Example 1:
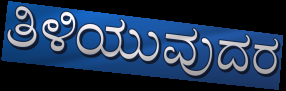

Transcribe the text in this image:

ತಿಳಿಯುವುದರ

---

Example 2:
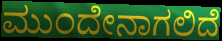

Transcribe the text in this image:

ಮುಂದೇನಾಗಲಿದೆ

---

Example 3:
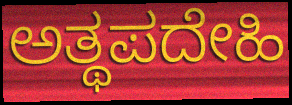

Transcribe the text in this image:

ಅತ್ಥಪದೇಹಿ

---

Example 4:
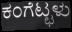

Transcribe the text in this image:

ಕಂಗೆಟ್ಟಳು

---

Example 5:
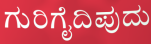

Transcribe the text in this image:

ಗುರಿಗೈದಿಪುದು